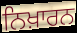
ਨਿਖ਼ਾਰਨ